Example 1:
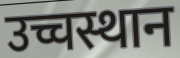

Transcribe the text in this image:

उच्चस्थान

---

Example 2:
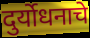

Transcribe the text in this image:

दुर्योधनाचे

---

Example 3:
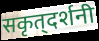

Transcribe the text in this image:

सकृत्‌दर्शनी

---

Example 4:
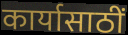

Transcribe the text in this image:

कार्यासाठीं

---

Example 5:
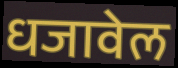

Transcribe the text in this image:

धजावेल